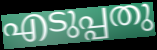
എടുപ്പതു